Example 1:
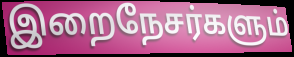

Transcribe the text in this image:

இறைநேசர்களும்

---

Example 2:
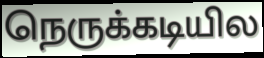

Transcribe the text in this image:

நெருக்கடியில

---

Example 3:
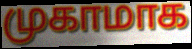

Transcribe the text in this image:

முகாமாக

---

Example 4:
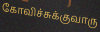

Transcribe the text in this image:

கோவிச்சுக்குவாரு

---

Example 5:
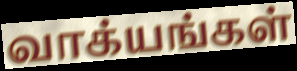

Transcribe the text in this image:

வாக்யங்கள்